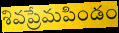
శివప్రేమపిండం